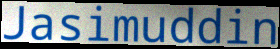
Jasimuddin